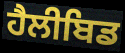
ਹੈਲੀਬਿਡ